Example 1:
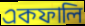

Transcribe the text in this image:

একফালি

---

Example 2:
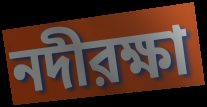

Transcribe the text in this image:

নদীরক্ষা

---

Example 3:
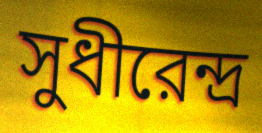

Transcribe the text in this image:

সুধীরেন্দ্র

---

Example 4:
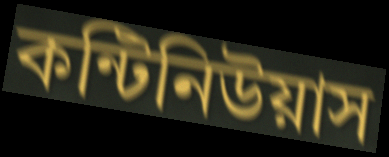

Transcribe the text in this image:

কন্টিনিউয়াস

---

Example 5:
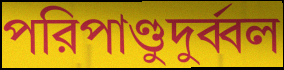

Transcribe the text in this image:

পরিপাণ্ডুদুর্ব্বল